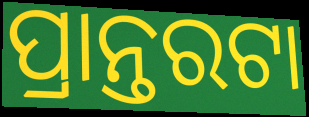
ପ୍ରାନ୍ତରଟା